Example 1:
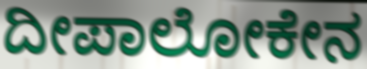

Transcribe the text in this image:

ದೀಪಾಲೋಕೇನ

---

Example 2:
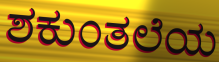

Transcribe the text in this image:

ಶಕುಂತಲೆಯ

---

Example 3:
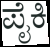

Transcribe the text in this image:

ಪೈಕಿ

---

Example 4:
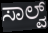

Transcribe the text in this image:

ಸಾಲ್ವ್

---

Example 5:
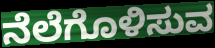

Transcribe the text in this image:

ನೆಲೆಗೊಳಿಸುವ